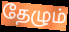
தேழும்